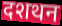
दशथन